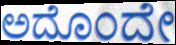
ಅದೊಂದೇ